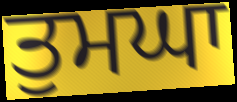
ਤੁਮਘਾ